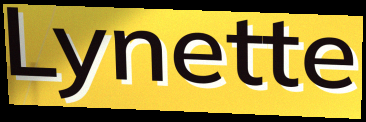
Lynette